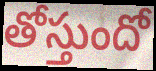
తోస్తుందో